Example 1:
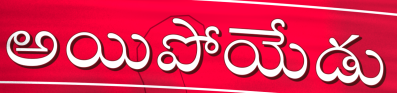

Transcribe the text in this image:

అయిపోయేడు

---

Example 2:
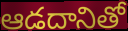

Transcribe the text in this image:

ఆడదానితో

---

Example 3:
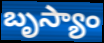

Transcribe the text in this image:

బృస్యాం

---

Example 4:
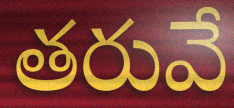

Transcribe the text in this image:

తరువే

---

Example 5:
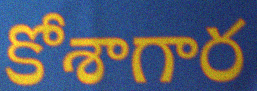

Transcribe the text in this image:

కోశాగార